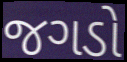
જગડો